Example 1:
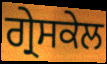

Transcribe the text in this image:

ਗ੍ਰੇਸਕੇਲ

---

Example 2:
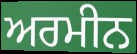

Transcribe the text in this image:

ਅਰਮੀਨ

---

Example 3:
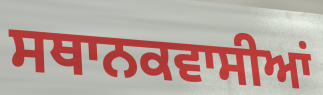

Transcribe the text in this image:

ਸਥਾਨਕਵਾਸੀਆਂ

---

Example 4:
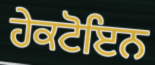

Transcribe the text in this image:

ਹੇਕਟੋਇਨ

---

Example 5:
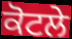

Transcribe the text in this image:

ਕੋਟਲੇ